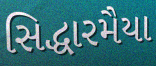
સિદ્ધારમૈયા